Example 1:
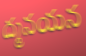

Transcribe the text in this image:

ద్మనయన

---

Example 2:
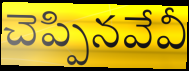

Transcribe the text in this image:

చెప్పినవేవీ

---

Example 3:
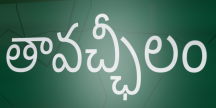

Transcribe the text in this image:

తావచ్ఛీలం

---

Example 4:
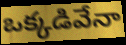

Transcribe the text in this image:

ఒక్కడివేనా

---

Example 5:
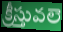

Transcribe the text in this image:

క్రీస్తువలె